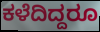
ಕಳೆದಿದ್ದರೂ